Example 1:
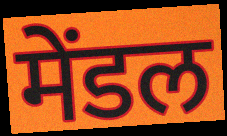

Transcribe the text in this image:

मेंडल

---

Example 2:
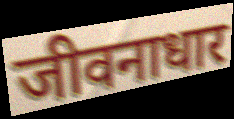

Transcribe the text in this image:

जीवनाधार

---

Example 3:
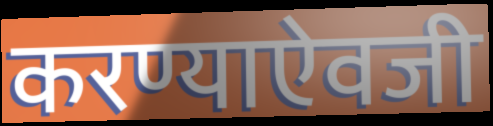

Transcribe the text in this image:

करण्याऐवजी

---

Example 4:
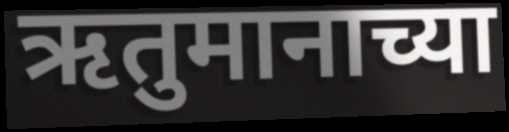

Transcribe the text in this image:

ऋतुमानाच्या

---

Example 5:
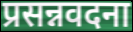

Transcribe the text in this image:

प्रसन्नवदना